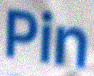
Pin